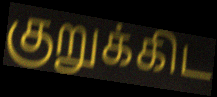
குறுக்கிட